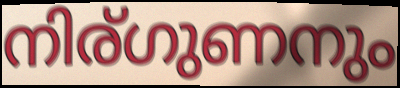
നിര്ഗുണനും